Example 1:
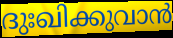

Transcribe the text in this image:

ദുഃഖിക്കുവാൻ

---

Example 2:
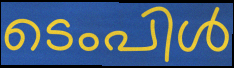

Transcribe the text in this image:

ടെംപിൾ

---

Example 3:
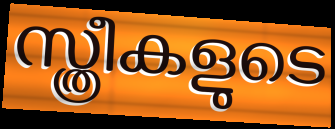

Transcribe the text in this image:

സ്ത്രീകളുടെ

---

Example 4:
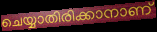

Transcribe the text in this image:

ചെയ്യാതിരിക്കാനാണ്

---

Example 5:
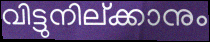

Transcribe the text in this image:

വിട്ടുനില്ക്കാനും